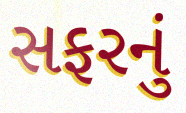
સફરનું